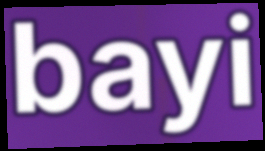
bayi